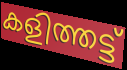
കളിത്തട്ട്